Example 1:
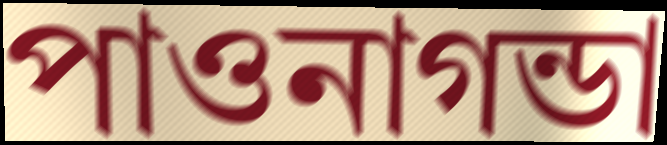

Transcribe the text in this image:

পাওনাগন্ডা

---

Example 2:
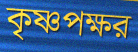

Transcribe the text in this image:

কৃষ্ণপক্ষর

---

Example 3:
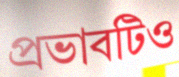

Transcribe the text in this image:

প্রভাবটিও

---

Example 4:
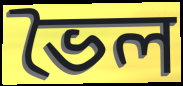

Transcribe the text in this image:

ভৈল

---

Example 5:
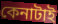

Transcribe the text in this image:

কেনাটাই